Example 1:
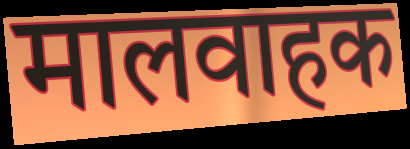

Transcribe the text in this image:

मालवाहक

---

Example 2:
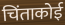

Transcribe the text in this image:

चिंताकोई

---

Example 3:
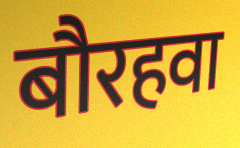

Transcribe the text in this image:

बौरहवा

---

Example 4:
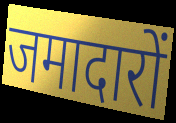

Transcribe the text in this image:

जमादारों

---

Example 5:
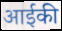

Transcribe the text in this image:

आईकी